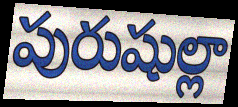
పురుషుల్లా